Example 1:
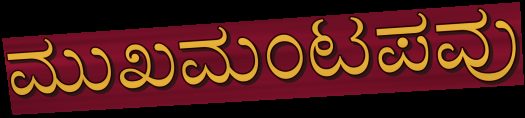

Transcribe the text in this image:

ಮುಖಮಂಟಪವು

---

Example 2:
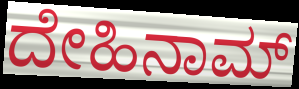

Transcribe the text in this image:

ದೇಹಿನಾಮ್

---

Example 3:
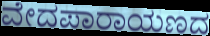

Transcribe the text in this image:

ವೇದಪಾರಾಯಣದ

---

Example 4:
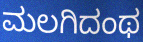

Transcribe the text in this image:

ಮಲಗಿದಂಥ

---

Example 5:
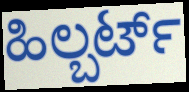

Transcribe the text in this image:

ಹಿಲ್ಬರ್ಟ್